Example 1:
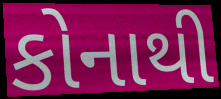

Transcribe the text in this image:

કોનાથી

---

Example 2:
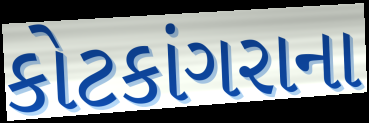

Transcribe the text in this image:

કોટકાંગરાના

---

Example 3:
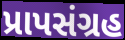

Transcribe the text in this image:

પ્રાપસંગ્રહ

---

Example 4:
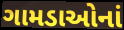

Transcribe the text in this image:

ગામડાઓનાં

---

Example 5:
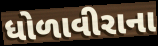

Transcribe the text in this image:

ધોળાવીરાના